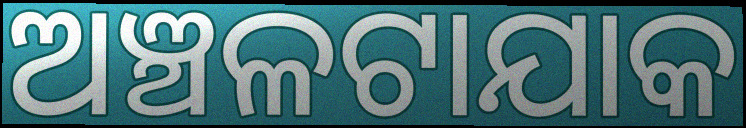
ଅଞ୍ଚଳଟାଯାକ